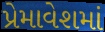
પ્રેમાવેશમાં